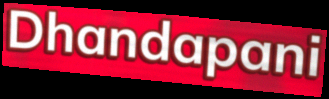
Dhandapani